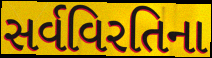
સર્વવિરતિના